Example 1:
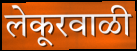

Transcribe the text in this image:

लेकूरवाळी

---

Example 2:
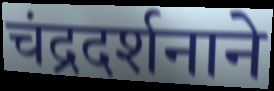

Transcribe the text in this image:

चंद्रदर्शनाने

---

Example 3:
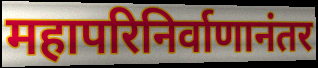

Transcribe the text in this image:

महापरिनिर्वाणानंतर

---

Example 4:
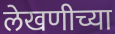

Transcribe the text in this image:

लेखणीच्या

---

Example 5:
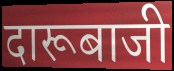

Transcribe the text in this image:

दारूबाजी